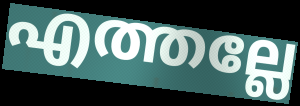
എത്തല്ലേ